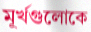
মূর্খগুলোকে